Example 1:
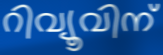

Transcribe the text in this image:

റിവ്യൂവിന്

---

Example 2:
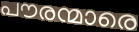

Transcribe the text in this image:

പൗരന്മാരെ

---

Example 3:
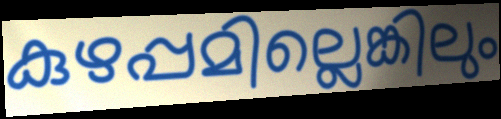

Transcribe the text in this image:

കുഴപ്പമില്ലെങ്കിലും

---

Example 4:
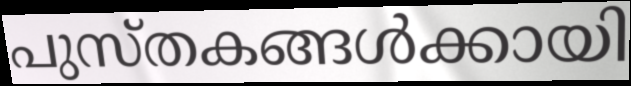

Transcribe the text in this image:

പുസ്തകങ്ങൾക്കായി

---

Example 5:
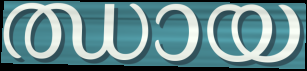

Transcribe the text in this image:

ഝായ